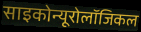
साइकोन्यूरोलॉजिकल